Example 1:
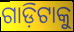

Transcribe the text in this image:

ଗାଡ଼ିଟାକୁ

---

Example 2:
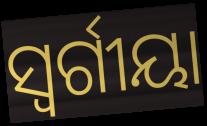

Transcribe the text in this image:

ସ୍ବର୍ଗୀୟା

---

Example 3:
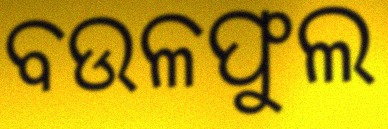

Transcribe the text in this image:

ବଉଳଫୁଲ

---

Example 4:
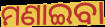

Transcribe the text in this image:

ମଣାଇବା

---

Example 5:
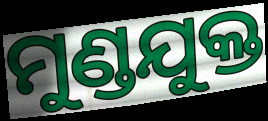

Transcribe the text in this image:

ମୁଣ୍ଡଯୁକ୍ତ